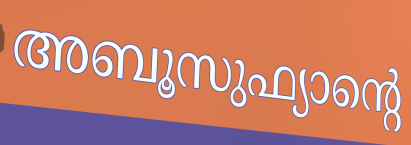
അബൂസുഫ്യാന്റെ